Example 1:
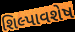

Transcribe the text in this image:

શિલ્પાવશેષ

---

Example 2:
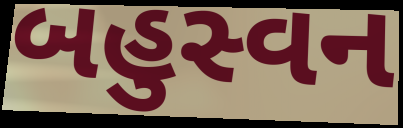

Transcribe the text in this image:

બહુસ્વન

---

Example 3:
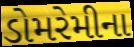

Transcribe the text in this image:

ડોમરેમીના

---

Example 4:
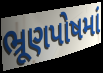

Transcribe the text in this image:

ભ્રૂણપોષમાં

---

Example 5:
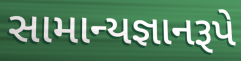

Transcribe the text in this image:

સામાન્યજ્ઞાનરૂપે